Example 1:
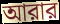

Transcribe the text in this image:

আরার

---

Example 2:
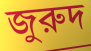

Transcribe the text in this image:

জুরুদ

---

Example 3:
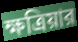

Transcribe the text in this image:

ক্ষত্রিয়ার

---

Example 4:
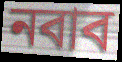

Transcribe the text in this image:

নবাব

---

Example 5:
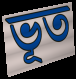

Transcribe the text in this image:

ভূত